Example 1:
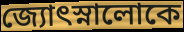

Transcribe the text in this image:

জ্যোৎস্নালোকে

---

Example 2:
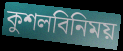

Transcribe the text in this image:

কুশলবিনিময়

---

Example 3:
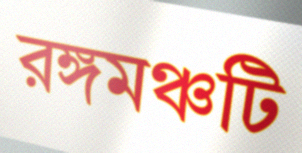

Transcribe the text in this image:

রঙ্গমঞ্চটি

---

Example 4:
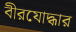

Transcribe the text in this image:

বীরযোদ্ধার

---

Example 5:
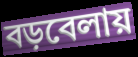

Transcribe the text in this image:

বড়বেলায়